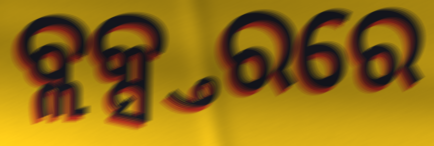
ବ୍ଲକ୍ସ୍ତରରେ